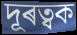
দূৰত্বক